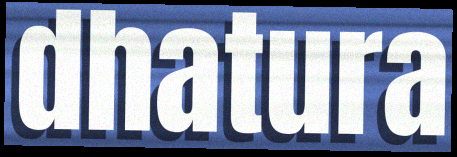
dhatura